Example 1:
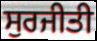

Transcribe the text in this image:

ਸੁਰਜੀਤੀ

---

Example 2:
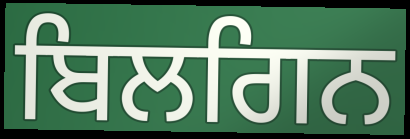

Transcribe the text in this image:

ਬਿਲਗਿਨ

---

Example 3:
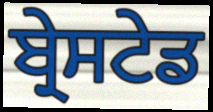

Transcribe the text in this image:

ਬ੍ਰੇਸਟੇਡ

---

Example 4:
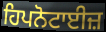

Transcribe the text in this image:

ਹਿਪਨੋਟਾਈਜ਼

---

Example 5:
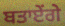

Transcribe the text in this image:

ਬਤਾਏਂਗੇ